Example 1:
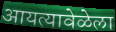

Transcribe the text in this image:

आयत्यावेळेला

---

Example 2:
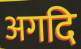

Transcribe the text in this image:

अगदि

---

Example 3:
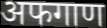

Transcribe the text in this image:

अफगाण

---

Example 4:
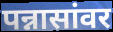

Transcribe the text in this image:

पन्नासांवर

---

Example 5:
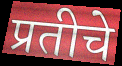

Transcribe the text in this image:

प्रतीचे